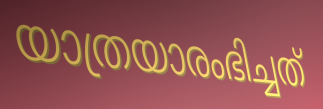
യാത്രയാരംഭിച്ചത്